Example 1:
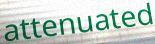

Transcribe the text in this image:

attenuated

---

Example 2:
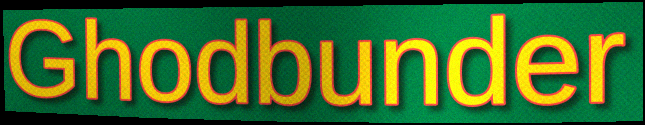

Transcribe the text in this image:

Ghodbunder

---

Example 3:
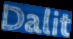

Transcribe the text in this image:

Dalit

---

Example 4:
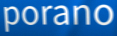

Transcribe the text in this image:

porano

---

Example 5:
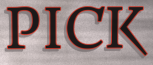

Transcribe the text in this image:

PICK